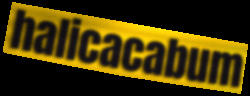
halicacabum